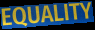
EQUALITY